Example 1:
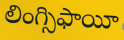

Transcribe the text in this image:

లింగ్సిఫాయీ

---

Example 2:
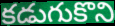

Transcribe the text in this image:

కడుగుకొని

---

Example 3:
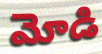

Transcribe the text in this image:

మోడి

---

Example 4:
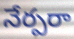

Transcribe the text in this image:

నేర్పరా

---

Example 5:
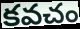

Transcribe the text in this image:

కవచం